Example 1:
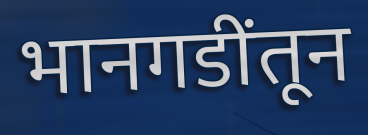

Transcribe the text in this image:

भानगडींतून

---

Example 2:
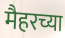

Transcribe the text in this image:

मैहरच्या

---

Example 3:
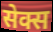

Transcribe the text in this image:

सेक्स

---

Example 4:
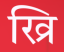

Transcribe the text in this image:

ख्रि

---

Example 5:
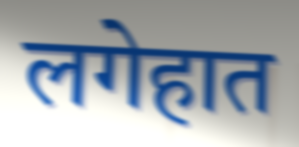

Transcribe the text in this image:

लगेहात